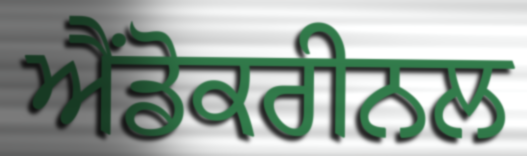
ਐਂਡੋਕਰੀਨਲ